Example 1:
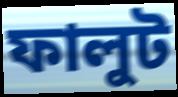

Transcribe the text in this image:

ফালুট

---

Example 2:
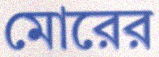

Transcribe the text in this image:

মোরের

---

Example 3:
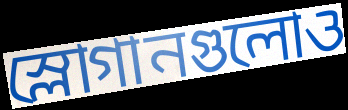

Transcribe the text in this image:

স্লোগানগুলোও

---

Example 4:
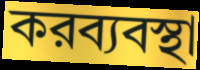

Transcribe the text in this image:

করব্যবস্থা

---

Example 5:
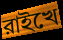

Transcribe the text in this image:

রাইখে